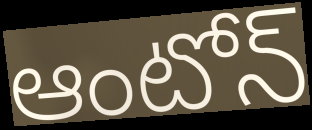
ఆంటోన్